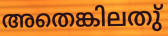
അതെങ്കിലതു്